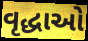
વૃદ્ધાઓ